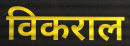
विकराल